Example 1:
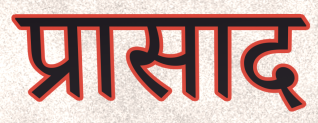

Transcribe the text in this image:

प्रासाद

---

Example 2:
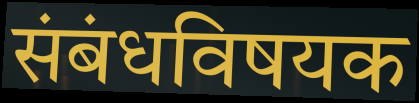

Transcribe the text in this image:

संबंधविषयक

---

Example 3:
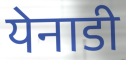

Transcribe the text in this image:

येनाडी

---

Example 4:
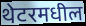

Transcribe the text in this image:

थेटरमधील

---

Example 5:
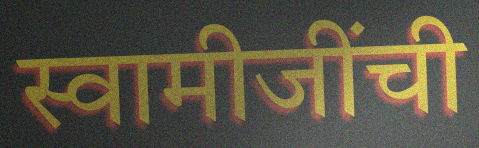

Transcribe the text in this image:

स्वामीजींची